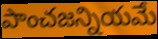
పాంచజన్నియమే